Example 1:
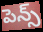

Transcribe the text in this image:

పెన్స్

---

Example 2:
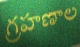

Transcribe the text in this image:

గ్రహణాల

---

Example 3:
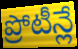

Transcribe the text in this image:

ప్రోటీన్లే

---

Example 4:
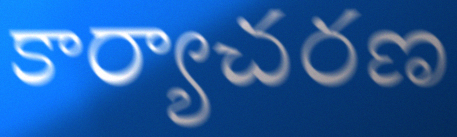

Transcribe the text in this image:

కార్యాచరణ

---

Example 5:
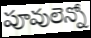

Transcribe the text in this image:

పూవులెన్నో